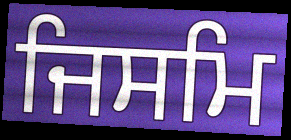
ਜਿਸਮਿ